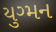
યુગ્મન